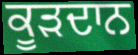
ਕੂੜਦਾਨ